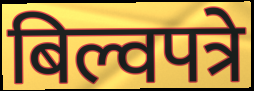
बिल्वपत्रे